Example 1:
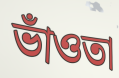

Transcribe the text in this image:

ভাঁওতা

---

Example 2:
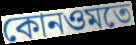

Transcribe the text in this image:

কোনওমতে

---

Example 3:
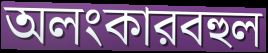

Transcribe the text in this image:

অলংকারবহুল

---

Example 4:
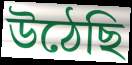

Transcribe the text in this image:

উঠেছি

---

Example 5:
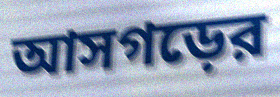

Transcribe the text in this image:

আসগড়ের